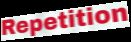
Repetition